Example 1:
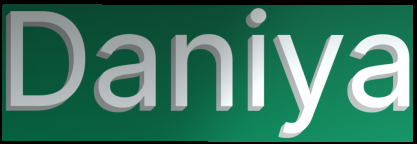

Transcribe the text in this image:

Daniya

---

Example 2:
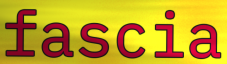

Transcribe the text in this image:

fascia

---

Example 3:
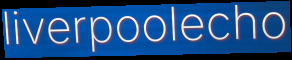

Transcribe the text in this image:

liverpoolecho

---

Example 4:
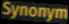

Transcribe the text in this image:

Synonym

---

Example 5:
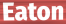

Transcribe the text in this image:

Eaton